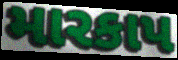
મારકાપ